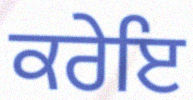
ਕਰੇਇ